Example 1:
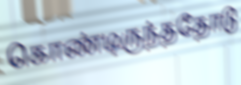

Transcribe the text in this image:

கொண்டிருந்ததோடு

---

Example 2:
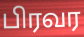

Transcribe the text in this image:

பிரவர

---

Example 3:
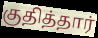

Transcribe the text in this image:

குதித்தார்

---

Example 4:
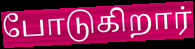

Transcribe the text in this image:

போடுகிறார்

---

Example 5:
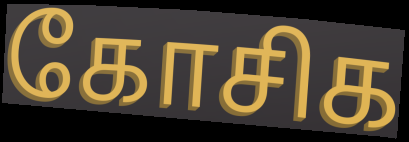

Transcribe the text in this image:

கோசிக